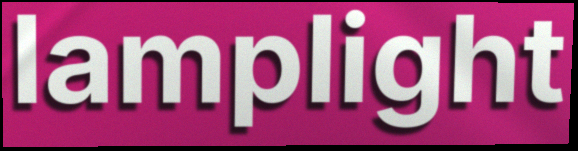
lamplight